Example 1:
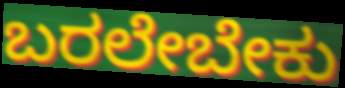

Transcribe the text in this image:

ಬರಲೇಬೇಕು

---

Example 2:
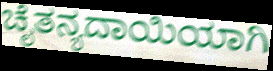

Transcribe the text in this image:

ಚೈತನ್ಯದಾಯಿಯಾಗಿ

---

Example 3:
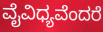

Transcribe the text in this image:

ವೈವಿಧ್ಯವೆಂದರೆ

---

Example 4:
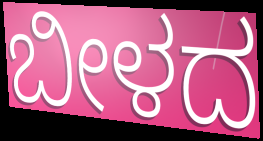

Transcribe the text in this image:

ಬೀಳದ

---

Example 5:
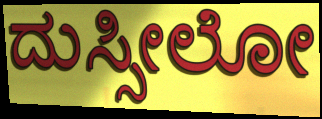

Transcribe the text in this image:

ದುಸ್ಸೀಲೋ